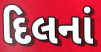
દિલનાં